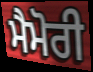
ਮੈਮੋਰੀ